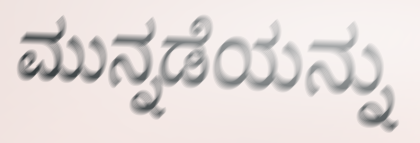
ಮುನ್ನಡೆಯನ್ನು